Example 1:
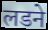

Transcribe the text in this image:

लडने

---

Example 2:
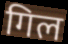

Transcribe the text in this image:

गिल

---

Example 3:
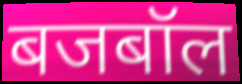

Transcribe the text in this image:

बजबॉल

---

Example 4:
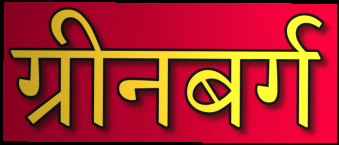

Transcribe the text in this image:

ग्रीनबर्ग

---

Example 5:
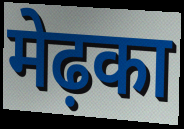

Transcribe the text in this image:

मेढ़का